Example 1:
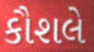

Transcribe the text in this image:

કૌશલે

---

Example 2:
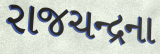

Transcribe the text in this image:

રાજચન્દ્રના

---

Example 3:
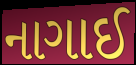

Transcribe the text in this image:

નાગાઈ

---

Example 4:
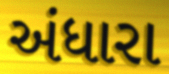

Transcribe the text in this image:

અંધારા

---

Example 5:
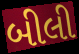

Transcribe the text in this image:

બીલી